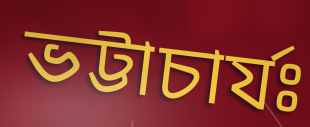
ভট্টাচাৰ্যঃ